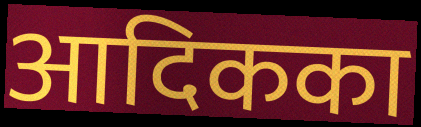
आदिकका